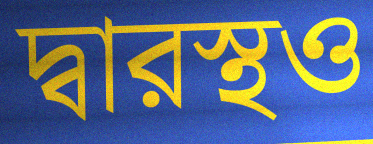
দ্বারস্থও